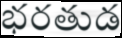
భరతుడ